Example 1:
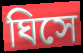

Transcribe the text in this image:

ঘিসে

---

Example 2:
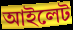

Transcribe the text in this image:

আইলেট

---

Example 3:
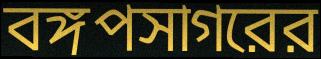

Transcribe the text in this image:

বঙ্গপসাগরের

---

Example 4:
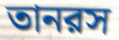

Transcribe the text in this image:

তানরস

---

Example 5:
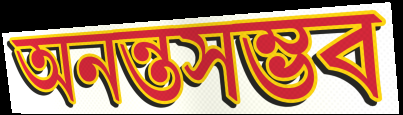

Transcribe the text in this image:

অনন্তসম্ভব